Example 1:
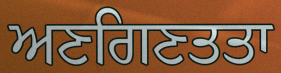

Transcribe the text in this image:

ਅਣਗਿਣਤਤਾ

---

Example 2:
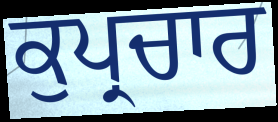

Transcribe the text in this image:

ਕੁਪ੍ਰਚਾਰ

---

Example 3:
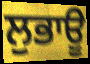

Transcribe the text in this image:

ਲੁਭਾਊ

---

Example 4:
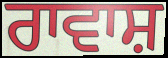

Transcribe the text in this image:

ਰਾਵਾਸ਼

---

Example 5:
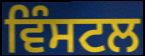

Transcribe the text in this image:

ਵਿੰਸਟਲ